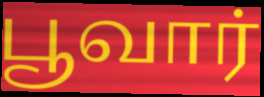
பூவார்